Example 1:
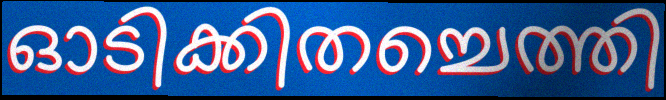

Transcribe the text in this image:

ഓടിക്കിതച്ചെത്തി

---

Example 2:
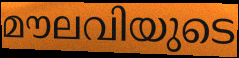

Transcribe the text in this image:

മൗലവിയുടെ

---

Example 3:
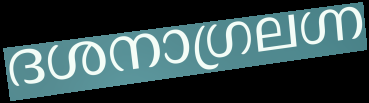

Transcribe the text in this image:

ദശനാഗ്രലഗ്ന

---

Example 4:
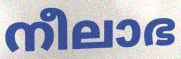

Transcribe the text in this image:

നീലാഭ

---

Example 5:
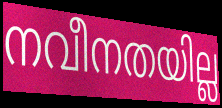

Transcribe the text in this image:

നവീനതയില്ല